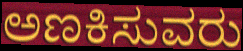
ಅಣಕಿಸುವರು